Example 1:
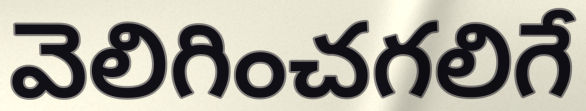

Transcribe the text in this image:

వెలిగించగలిగే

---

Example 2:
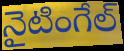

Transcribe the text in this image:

నైటింగేల్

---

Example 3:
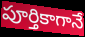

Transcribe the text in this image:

పూర్తికాగానే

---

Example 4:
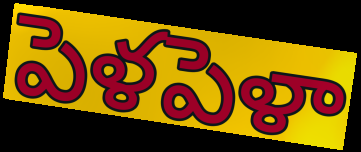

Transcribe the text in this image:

పెళపెళా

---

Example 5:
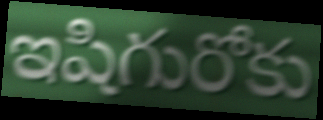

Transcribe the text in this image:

ఇషిగురోకు